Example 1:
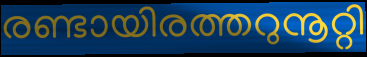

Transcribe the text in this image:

രണ്ടായിരത്തറുനൂറ്റി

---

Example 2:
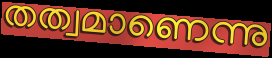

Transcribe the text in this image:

തത്വമാണെന്നു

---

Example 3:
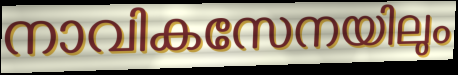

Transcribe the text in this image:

നാവികസേനയിലും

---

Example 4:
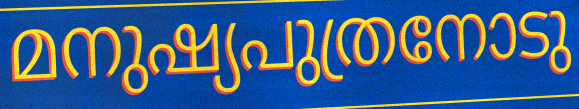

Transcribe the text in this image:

മനുഷ്യപുത്രനോടു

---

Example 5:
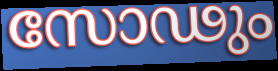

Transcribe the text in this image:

സോഢും